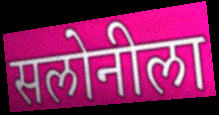
सलोनीला